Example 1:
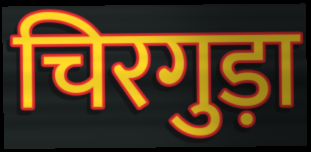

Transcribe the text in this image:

चिरगुड़ा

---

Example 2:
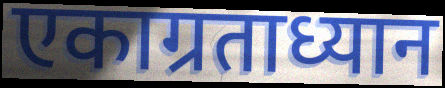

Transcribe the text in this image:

एकाग्रताध्यान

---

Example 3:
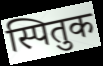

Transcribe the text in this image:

स्पितुक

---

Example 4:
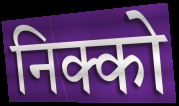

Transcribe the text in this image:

निक्को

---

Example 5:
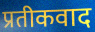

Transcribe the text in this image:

प्रतीकवाद